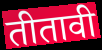
तीतावी